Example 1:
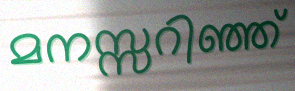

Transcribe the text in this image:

മനസ്സറിഞ്ഞ്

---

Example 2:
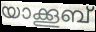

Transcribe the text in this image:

യാക്കൂബ്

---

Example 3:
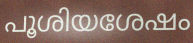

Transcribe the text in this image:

പൂശിയശേഷം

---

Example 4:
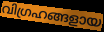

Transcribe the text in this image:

വിഗ്രഹങ്ങളായ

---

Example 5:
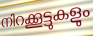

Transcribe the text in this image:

നിറക്കൂട്ടുകളും